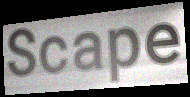
Scape